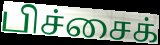
பிச்சைக்